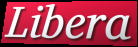
Libera